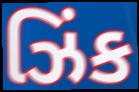
ઝિંક